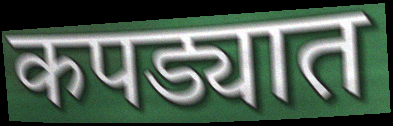
कपड्यात